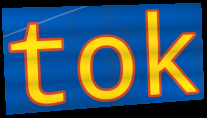
tok